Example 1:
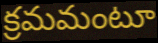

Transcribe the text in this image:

క్రమమంటూ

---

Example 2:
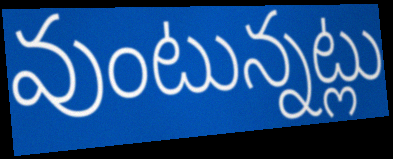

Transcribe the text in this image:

వుంటున్నట్లు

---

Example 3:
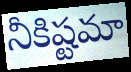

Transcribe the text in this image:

నీకిష్టమా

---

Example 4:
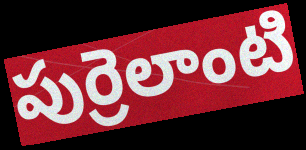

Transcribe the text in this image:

పుర్రెలాంటి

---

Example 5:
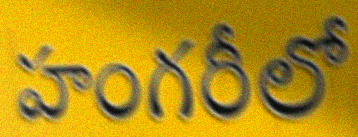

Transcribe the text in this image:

హంగరీలో